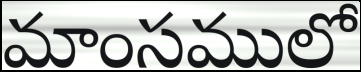
మాంసములో